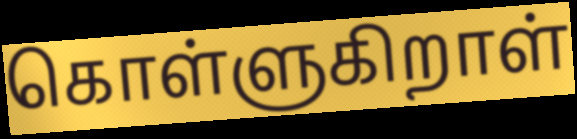
கொள்ளுகிறாள்